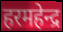
हरमहेन्द्र